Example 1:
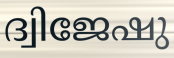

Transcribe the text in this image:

ദ്വിജേഷു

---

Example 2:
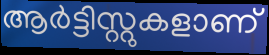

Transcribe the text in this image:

ആർട്ടിസ്റ്റുകളാണ്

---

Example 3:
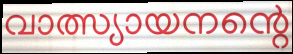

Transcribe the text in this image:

വാത്സ്യായനന്റെ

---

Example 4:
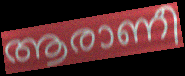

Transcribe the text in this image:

ആരാണീ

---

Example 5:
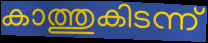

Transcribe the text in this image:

കാത്തുകിടന്ന്